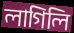
লাগিলি